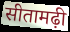
सीतामढ़ी